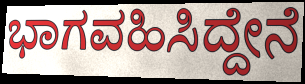
ಭಾಗವಹಿಸಿದ್ದೇನೆ